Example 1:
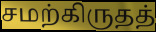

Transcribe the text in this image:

சமற்கிருதத்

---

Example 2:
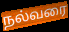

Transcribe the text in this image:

நல்வரை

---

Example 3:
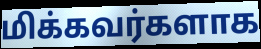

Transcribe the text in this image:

மிக்கவர்களாக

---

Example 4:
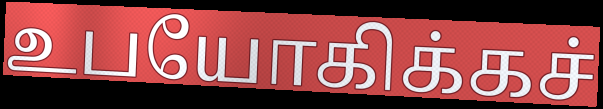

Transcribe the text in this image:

உபயோகிக்கச்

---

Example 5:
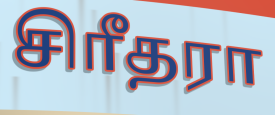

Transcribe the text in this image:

சிரீதரா